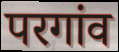
परगांव